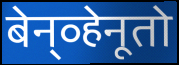
बेन्‌व्हेनूतो